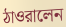
ঠাওরালেন